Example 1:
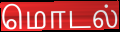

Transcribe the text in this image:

மொடல்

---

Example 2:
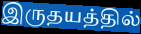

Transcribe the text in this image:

இருதயத்தில்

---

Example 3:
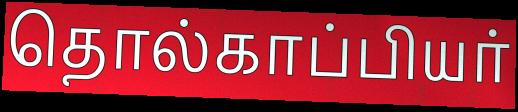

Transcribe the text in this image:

தொல்காப்பியர்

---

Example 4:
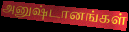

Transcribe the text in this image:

அனுஷ்டானங்கள்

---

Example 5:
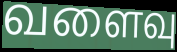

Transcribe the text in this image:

வளைவு